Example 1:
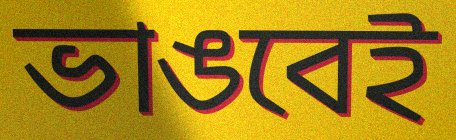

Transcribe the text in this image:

ভাঙবেই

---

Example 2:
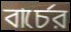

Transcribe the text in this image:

বার্চের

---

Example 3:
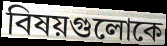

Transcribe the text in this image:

বিষয়গুলোকে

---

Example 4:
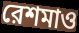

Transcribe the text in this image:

রেশমাও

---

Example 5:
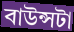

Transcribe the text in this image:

বাউন্সটা